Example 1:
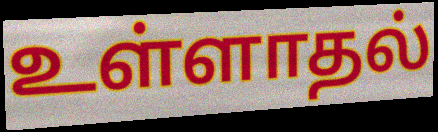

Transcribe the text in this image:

உள்ளாதல்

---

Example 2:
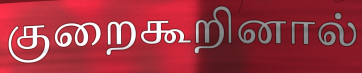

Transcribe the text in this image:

குறைகூறினால்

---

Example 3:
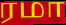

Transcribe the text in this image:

ரமா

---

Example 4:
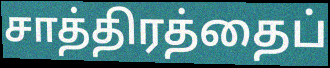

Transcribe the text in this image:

சாத்திரத்தைப்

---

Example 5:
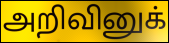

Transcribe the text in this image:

அறிவினுக்